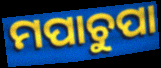
ମପାଚୁପା